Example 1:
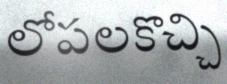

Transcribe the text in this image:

లోపలకొచ్చి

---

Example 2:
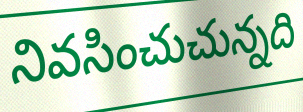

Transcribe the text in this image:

నివసించుచున్నది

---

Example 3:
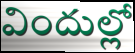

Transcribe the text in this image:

విందుల్లో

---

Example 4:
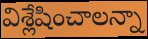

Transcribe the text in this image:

విశ్లేషించాలన్నా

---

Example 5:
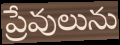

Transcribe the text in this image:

ప్రేవులును